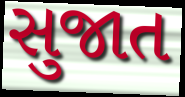
સુજાત